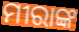
ମୀରାଙ୍କ